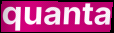
quanta